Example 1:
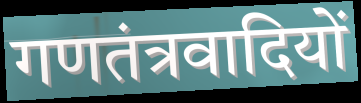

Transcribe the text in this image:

गणतंत्रवादियों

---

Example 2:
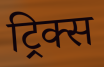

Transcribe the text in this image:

ट्रिक्स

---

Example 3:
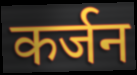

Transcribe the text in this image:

कर्जन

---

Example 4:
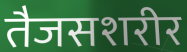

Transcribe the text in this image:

तैजसशरीर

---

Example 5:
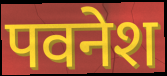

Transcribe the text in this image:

पवनेश